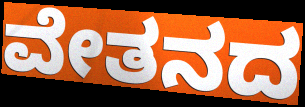
ವೇತನದ